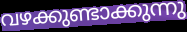
വഴക്കുണ്ടാക്കുന്നു